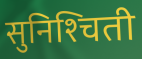
सुनिश्चिती